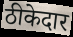
ठीकेदार